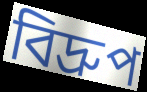
বিদ্রুপ